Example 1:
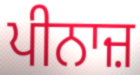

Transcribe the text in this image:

ਪੀਨਾਜ਼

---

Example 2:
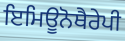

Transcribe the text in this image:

ਇਮਿਊਨੋਥੈਰੇਪੀ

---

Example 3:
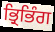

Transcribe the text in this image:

ਭ੍ਰਿਭਿੰਗ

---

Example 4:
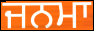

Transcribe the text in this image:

ਜਨਮਾ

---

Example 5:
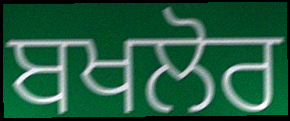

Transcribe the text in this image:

ਬਖਲੋਰ